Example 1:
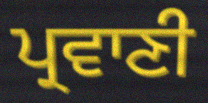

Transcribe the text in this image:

ਪ੍ਰਵਾਣੀ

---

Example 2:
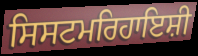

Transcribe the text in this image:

ਸਿਸਟਮਰਿਹਾਇਸ਼ੀ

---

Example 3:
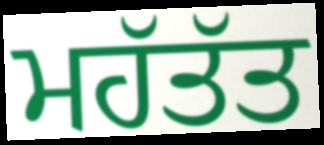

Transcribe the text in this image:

ਮਹੱਤੱਤ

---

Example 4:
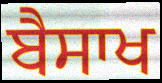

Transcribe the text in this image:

ਬੈਸਾਖ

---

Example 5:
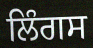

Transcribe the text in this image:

ਲਿੰਗਸ